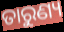
ତାରୁଣ୍ୟ